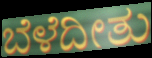
ಬೆಳೆದೀತು